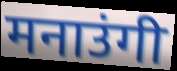
मनाउंगी